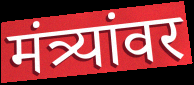
मंत्र्यांवर